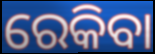
ରେକିବା